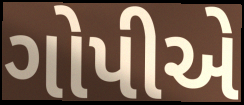
ગોપીએ